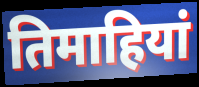
तिमाहियां